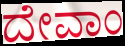
ದೇವಾಂ